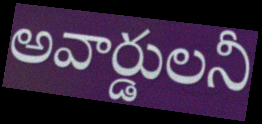
అవార్డులనీ